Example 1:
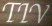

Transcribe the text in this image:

TIV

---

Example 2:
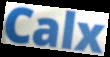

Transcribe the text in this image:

Calx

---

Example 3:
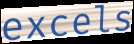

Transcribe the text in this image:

excels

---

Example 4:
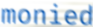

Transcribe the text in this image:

monied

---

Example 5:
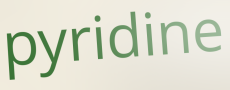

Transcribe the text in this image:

pyridine